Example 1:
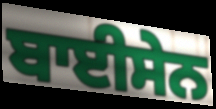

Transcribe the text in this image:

ਬਾਈਸੇਨ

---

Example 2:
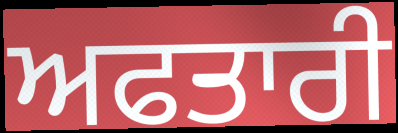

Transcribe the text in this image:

ਅਫਤਾਰੀ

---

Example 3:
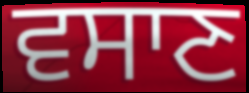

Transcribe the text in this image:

ਵਸਾਣ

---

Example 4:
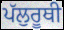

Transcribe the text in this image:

ਪੱਲੁਰੂਥੀ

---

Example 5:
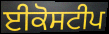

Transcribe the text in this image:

ਈਕੋਸਟੀਪ